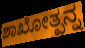
ಶಾಖೋತ್ಪನ್ನ